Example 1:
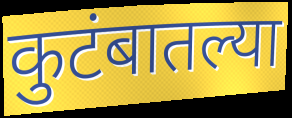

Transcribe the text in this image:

कुटंबातल्या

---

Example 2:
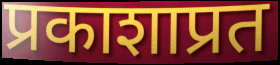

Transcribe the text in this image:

प्रकाशाप्रत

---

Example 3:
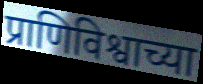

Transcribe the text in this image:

प्राणिविश्वाच्या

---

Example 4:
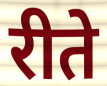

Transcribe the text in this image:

रीते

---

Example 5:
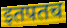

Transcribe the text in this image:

इतपतच